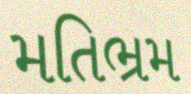
મતિભ્રમ